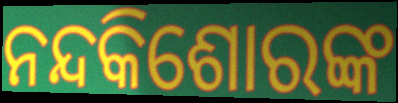
ନନ୍ଦକିଶୋରଙ୍କ